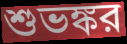
শুভঙ্কর